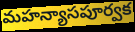
మహన్యాసపూర్వక